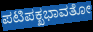
ಪಟಿಪಕ್ಖಭಾವತೋ